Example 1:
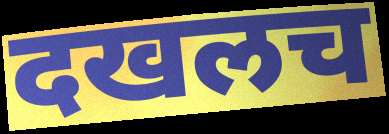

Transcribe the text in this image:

दखलच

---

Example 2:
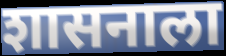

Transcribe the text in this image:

शासनाला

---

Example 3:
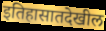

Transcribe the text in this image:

इतिहासातदेखील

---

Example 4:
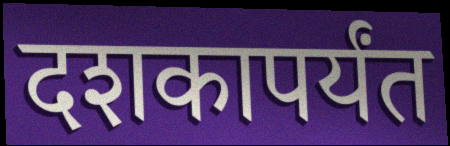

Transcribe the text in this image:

दशकापर्यंत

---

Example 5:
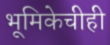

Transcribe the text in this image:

भूमिकेचीही